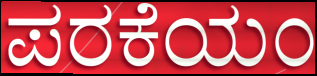
ಪರಕೆಯಂ